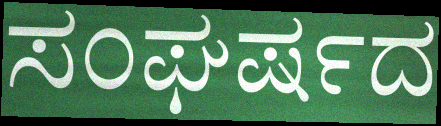
ಸಂಘರ್ಷದ